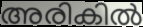
അരികിൽ